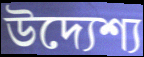
উদ্যেশ্য